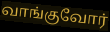
வாங்குவோர்